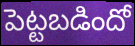
పెట్టబడిందో